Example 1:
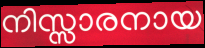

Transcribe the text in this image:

നിസ്സാരനായ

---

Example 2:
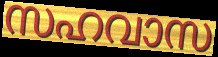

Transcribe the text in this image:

സഹവാസ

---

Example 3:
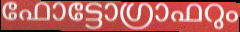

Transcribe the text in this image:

ഫോട്ടോഗ്രാഫറും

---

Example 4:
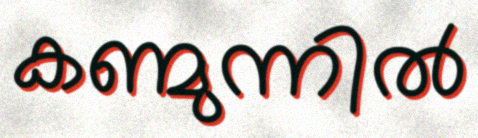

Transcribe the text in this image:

കണ്മുന്നിൽ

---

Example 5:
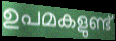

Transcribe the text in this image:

ഉപമകളുണ്ട്